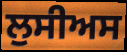
ਲੁਸੀਅਸ